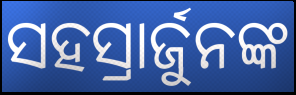
ସହସ୍ରାର୍ଜୁନଙ୍କ